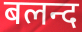
बलन्द